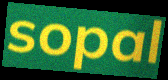
sopal